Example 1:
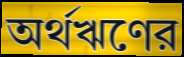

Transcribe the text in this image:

অর্থঋণের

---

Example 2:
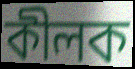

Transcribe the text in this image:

কীলক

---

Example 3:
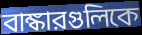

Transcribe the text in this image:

বাঙ্কারগুলিকে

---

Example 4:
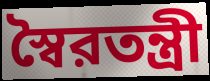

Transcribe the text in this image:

স্বৈরতন্ত্রী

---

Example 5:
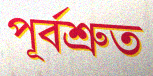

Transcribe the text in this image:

পূর্বশ্রুত